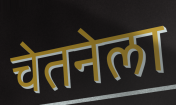
चेतनेला